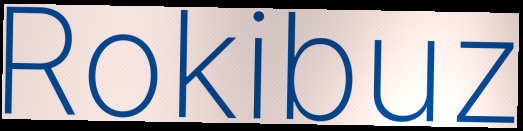
Rokibuz